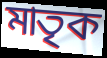
মাতৃক